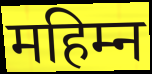
महिम्न